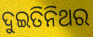
ଦୁଇତିନିଥର